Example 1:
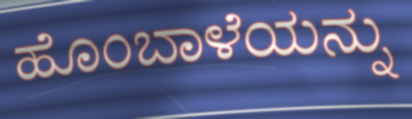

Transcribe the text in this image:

ಹೊಂಬಾಳೆಯನ್ನು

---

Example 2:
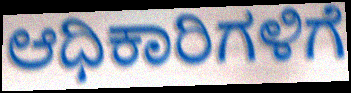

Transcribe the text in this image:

ಆಧಿಕಾರಿಗಳಿಗೆ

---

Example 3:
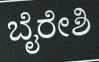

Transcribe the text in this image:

ಬೈರೇಶಿ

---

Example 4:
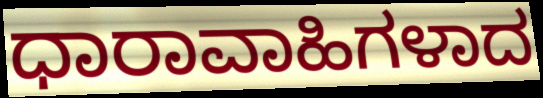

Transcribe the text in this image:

ಧಾರಾವಾಹಿಗಳಾದ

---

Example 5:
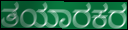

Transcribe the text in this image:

ತಯಾರಕರ